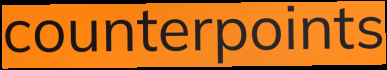
counterpoints